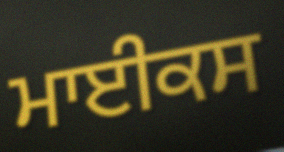
ਮਾਈਕਸ